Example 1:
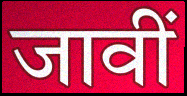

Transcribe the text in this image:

जावीं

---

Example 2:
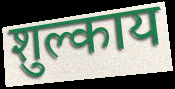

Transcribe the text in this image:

शुल्काय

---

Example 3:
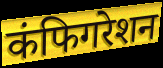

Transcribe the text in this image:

कंफिगरेशन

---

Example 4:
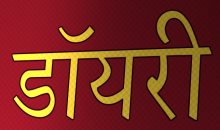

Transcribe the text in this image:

डॉयरी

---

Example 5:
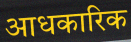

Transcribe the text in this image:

आधकारिक